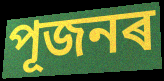
পূজনৰ